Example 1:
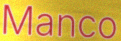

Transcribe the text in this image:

Manco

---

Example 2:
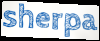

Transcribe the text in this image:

sherpa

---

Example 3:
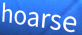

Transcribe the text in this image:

hoarse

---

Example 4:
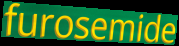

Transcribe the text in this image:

furosemide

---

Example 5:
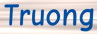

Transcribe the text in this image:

Truong